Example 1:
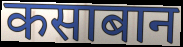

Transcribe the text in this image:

कसाबान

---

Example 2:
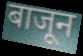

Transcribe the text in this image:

बाजून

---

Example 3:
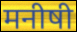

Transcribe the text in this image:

मनीषी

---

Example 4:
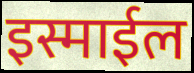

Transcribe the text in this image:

इस्माईल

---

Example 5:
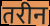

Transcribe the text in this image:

तरीन